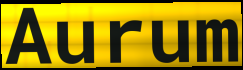
Aurum